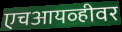
एचआयव्हीवर